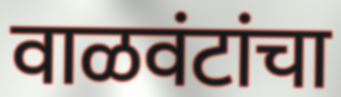
वाळवंटांचा